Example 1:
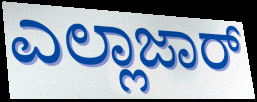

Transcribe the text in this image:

ಎಲ್ಲಾಜಾರ್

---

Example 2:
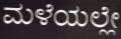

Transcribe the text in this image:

ಮಳೆಯಲ್ಲೇ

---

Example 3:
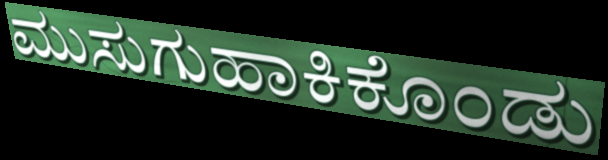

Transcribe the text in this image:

ಮುಸುಗುಹಾಕಿಕೊಂಡು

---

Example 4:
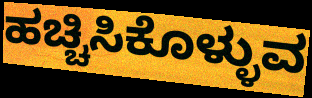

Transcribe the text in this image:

ಹಚ್ಚಿಸಿಕೊಳ್ಳುವ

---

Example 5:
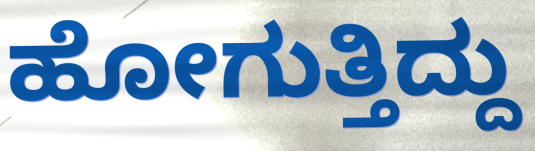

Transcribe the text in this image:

ಹೋಗುತ್ತಿದ್ದು